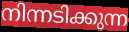
നിന്നടിക്കുന്ന